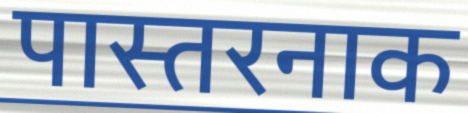
पास्तरनाक